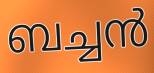
ബച്ചൻ